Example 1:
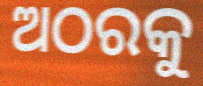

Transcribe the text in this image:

ଅଠରକୁ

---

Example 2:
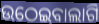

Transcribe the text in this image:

ଉଠେଇବାଲାଗି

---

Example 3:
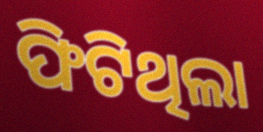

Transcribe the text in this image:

ଫିଟିଥିଲା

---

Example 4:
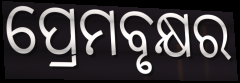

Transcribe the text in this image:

ପ୍ରେମବୃକ୍ଷର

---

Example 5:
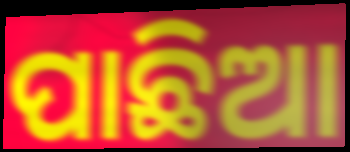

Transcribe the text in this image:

ପାଛିଆ